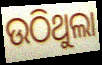
ଉଠିଥୁଲା